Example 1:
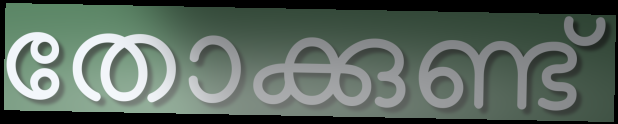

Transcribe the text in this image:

തോക്കുണ്ട്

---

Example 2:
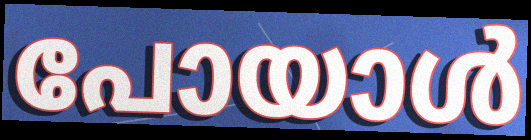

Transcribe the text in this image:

പോയാൾ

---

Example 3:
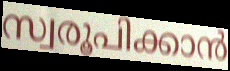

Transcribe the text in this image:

സ്വരൂപിക്കാൻ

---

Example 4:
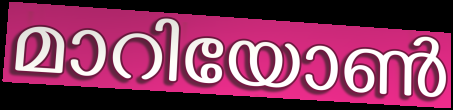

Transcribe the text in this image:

മാറിയോൺ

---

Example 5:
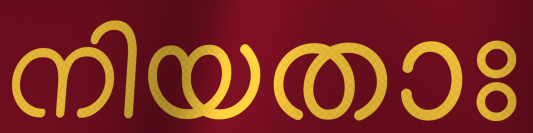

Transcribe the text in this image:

നിയതാഃ